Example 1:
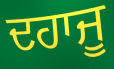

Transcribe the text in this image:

ਦਹਾਜੂ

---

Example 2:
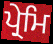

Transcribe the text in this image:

ਪ੍ਰੇਮਿ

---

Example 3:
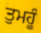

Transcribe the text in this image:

ਤੁਮਹੂੰ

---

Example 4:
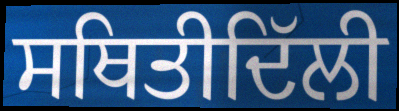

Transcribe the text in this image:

ਸਥਿਤੀਦਿੱਲੀ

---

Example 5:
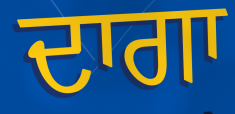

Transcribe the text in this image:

ਦਾਗਾ